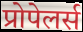
प्रोपेलर्स